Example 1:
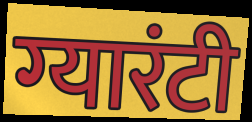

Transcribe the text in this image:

ग्‍यारंटी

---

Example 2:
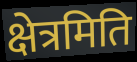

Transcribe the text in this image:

क्षेत्रमिति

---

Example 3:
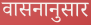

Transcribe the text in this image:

वासनानुसार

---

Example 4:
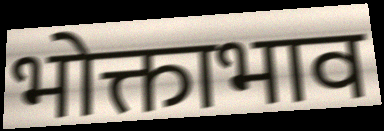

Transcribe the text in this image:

भोक्ताभाव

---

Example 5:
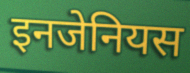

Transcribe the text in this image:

इनजेनियस